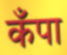
कँपा